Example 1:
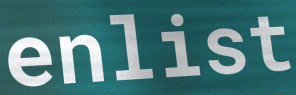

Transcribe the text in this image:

enlist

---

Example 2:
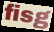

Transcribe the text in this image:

fisg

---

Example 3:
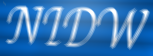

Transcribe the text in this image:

NIDW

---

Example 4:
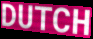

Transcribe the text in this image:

DUTCH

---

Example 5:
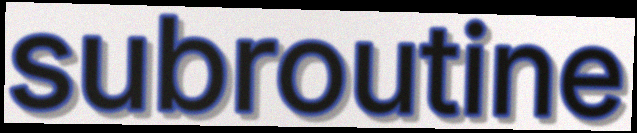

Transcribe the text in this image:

subroutine